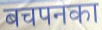
बचपनका